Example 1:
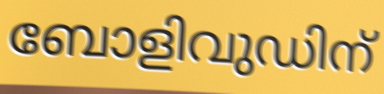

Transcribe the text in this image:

ബോളിവുഡിന്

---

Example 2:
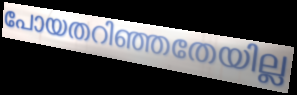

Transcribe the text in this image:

പോയതറിഞ്ഞതേയില്ല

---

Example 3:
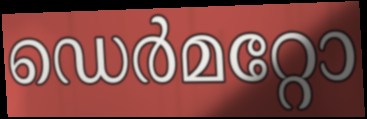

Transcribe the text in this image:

ഡെർമറ്റോ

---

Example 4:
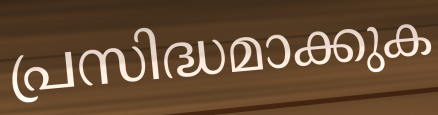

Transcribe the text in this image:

പ്രസിദ്ധമാക്കുക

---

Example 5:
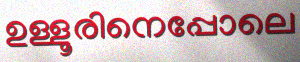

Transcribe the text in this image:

ഉള്ളൂരിനെപ്പോലെ